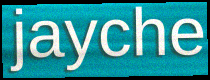
jayche